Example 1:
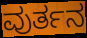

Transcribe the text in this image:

ವುರ್ತನ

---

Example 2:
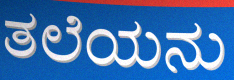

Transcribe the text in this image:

ತಲೆಯನು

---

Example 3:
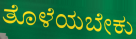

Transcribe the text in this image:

ತೊಳೆಯಬೇಕು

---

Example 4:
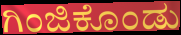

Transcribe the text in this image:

ಗಿಂಜಿಕೊಂಡು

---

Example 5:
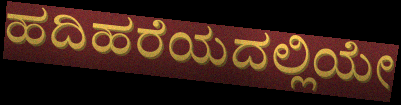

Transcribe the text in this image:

ಹದಿಹರೆಯದಲ್ಲಿಯೇ